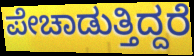
ಪೇಚಾಡುತ್ತಿದ್ದರೆ